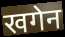
खगेन